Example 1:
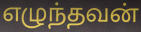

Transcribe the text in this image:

எழுந்தவன்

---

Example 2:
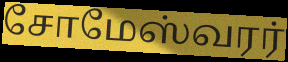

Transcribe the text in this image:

சோமேஸ்வரர்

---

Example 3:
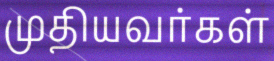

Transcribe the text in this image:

முதியவர்கள்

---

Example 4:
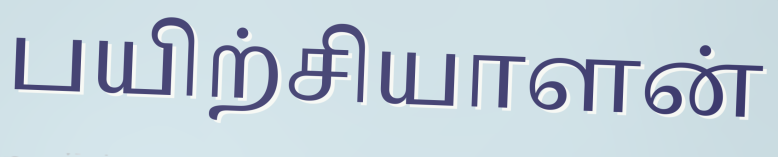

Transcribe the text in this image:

பயிற்சியாளன்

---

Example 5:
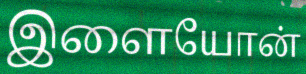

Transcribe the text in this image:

இளையோன்